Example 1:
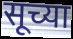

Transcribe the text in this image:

सूच्या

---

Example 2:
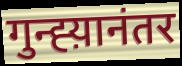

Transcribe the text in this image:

गुन्ह्य़ानंतर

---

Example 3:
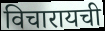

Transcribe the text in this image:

विचारायची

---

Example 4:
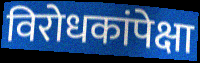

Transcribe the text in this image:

विरोधकांपेक्षा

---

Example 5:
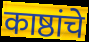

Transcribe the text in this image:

काष्ठांचे